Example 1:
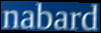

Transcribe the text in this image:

nabard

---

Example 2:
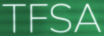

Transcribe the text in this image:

TFSA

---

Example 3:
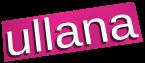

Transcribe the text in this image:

ullana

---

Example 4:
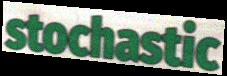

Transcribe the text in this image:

stochastic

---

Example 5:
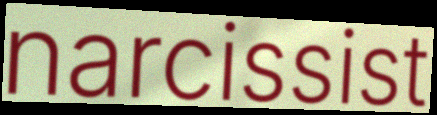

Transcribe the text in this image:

narcissist